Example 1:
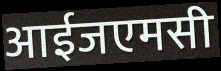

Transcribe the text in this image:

आईजएमसी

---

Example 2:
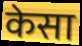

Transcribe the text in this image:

केसा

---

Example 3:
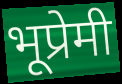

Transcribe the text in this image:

भूप्रेमी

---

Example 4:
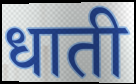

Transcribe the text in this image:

धाती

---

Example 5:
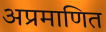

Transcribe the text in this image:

अप्रमाणित